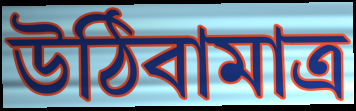
উঠিবামাত্র